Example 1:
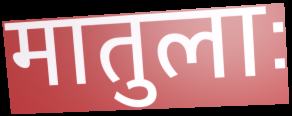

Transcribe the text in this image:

मातुलाः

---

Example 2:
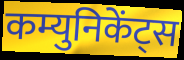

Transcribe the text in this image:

कम्युनिकेंट्स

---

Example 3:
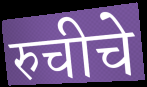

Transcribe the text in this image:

रुचीचे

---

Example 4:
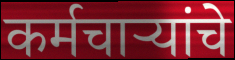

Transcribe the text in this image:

कर्मचाऱ्यांचे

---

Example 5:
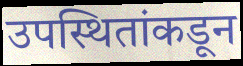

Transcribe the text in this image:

उपस्थितांकडून